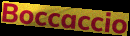
Boccaccio